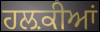
ਹਲ਼ਕੀਆਂ